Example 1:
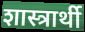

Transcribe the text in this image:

शास्त्रार्थी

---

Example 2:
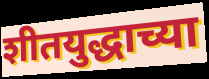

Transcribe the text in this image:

शीतयुद्धाच्या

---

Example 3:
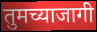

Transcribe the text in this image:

तुमच्याजागी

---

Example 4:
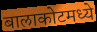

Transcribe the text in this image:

बालाकोटमध्ये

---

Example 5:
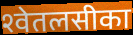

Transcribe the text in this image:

श्वेतलसीका